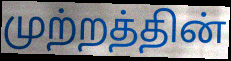
முற்றத்தின்